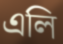
এলি